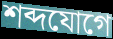
শব্দযোগে